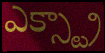
ఎక్స్ట్రా